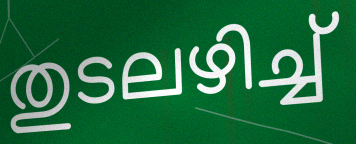
തുടലഴിച്ച്